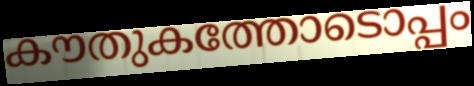
കൗതുകത്തോടൊപ്പം